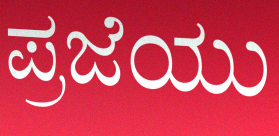
ಪ್ರಜೆಯು